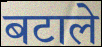
बटाले